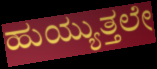
ಹುಯ್ಯುತ್ತಲೇ